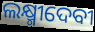
ଲକ୍ଷ୍ମୀଦେବୀ